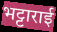
भट्टाराई